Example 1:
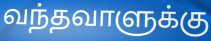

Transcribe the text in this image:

வந்தவாளுக்கு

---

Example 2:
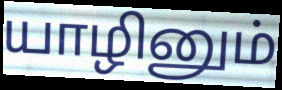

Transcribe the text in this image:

யாழினும்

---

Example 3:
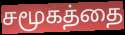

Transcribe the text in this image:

சமூகத்தை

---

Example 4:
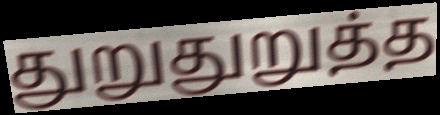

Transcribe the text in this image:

துறுதுறுத்த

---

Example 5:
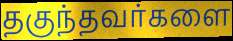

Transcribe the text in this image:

தகுந்தவர்களை